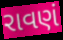
રાવણં